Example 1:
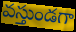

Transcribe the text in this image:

వస్తుండగా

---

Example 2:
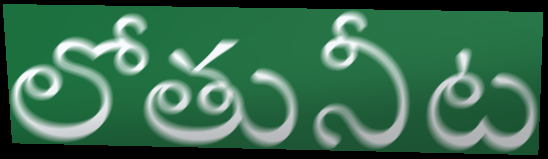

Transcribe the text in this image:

లోతునీట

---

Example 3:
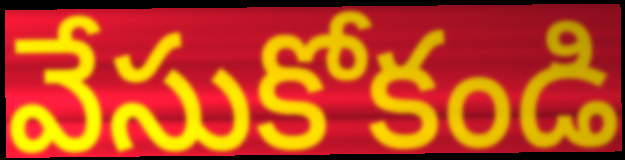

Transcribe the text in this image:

వేసుకోకండి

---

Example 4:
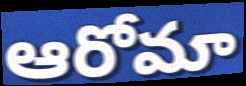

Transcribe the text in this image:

ఆరోమా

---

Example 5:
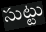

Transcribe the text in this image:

సుట్టు